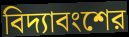
বিদ্যাবংশের